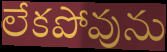
లేకపోవును